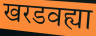
खरडवह्या